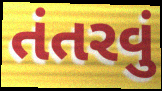
તંતરવું